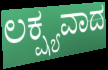
ಲಕ್ಷ್ಯವಾದ